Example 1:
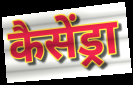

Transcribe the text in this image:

कैसेंड्रा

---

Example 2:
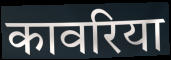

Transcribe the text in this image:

कावरिया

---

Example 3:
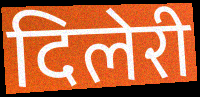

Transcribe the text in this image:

दिलेरी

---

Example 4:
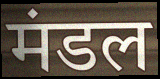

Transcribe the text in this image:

मंडल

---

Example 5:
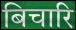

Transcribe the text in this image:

बिचारि